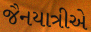
જૈનયાત્રીએ